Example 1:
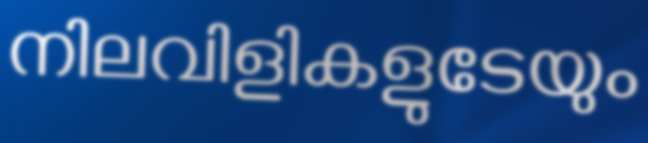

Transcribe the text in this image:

നിലവിളികളുടേയും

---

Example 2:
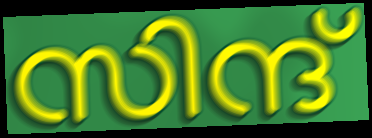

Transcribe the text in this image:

സിന്ദ്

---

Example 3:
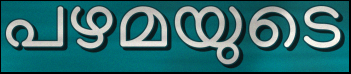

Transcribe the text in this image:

പഴമയുടെ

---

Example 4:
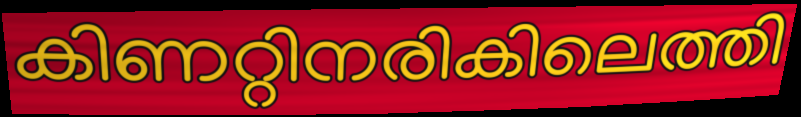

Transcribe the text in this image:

കിണറ്റിനരികിലെത്തി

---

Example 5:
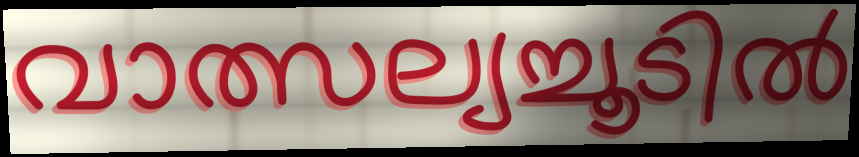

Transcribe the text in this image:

വാത്സല്യച്ചൂടിൽ